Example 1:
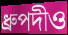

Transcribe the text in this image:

ধ্রুপদীও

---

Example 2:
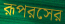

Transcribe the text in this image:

রূপরসের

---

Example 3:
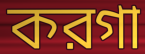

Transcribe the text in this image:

করগা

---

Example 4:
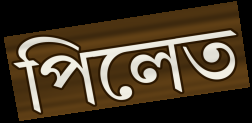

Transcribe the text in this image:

পিলেত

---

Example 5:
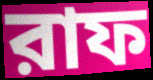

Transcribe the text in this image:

রাফ